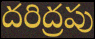
దరిద్రపు